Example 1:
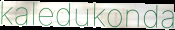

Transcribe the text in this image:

kaledukonda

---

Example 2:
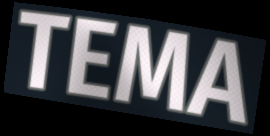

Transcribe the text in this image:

TEMA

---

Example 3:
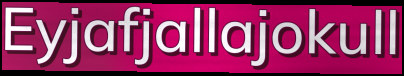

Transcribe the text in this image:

Eyjafjallajokull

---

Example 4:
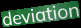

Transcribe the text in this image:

deviation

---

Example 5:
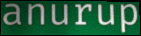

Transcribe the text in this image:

anurup